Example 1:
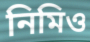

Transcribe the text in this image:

নিমিও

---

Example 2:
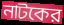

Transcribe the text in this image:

নাটকের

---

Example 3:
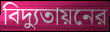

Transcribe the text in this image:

বিদ্যুতায়নের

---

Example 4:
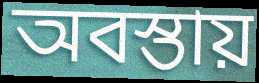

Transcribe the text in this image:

অবস্তায়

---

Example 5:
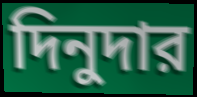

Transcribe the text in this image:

দিনুদার